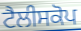
ਟੈਲੀਸਕੋਪ